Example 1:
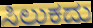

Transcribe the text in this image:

ಸಿಲುಕದು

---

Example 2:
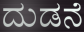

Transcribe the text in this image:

ದುಡನೆ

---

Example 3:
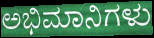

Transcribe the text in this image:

ಅಭಿಮಾನಿಗಳು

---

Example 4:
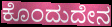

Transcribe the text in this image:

ಕೊಂದುದೇನ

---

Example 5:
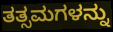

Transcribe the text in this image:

ತತ್ಸಮಗಳನ್ನು